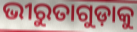
ଭୀରୁତାଗୁଡ଼ାକୁ